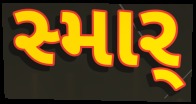
સ્માર્